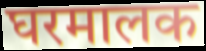
घरमालक